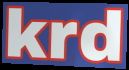
krd